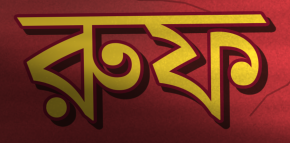
রুফ